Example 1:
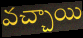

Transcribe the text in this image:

వచ్చాయి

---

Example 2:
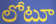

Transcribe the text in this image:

లోటూ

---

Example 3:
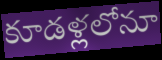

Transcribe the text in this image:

కూడళ్లలోనూ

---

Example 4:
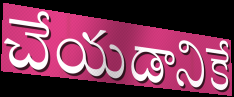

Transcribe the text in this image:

చేయడానికే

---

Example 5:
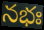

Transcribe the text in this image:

నభః